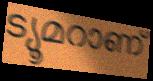
ട്യൂമറാണ്